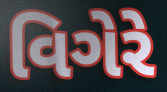
વિગેરે